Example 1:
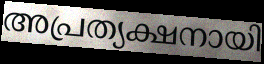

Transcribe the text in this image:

അപ്രത്യക്ഷനായി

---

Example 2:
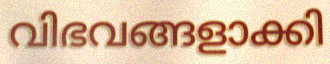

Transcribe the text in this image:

വിഭവങ്ങളാക്കി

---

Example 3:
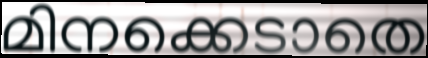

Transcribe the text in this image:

മിനക്കെടാതെ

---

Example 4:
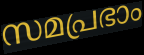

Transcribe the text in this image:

സമപ്രഭാം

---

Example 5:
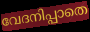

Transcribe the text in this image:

വേദനിപ്പാതെ